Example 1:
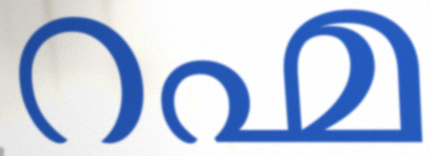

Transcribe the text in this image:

റഹ്മ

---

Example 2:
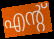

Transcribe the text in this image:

എന്റ്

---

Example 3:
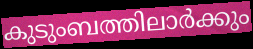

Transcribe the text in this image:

കുടുംബത്തിലാർക്കും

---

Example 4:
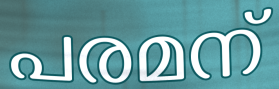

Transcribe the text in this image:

പരമന്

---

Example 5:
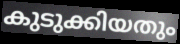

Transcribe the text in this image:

കുടുക്കിയതും